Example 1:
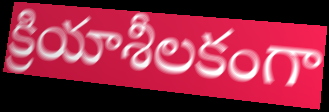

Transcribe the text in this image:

క్రియాశీలకంగా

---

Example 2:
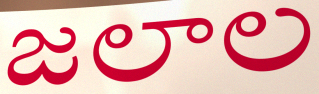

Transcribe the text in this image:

జలాల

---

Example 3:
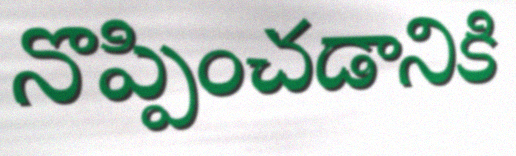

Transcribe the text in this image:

నొప్పించడానికి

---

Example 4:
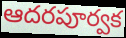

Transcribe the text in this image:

ఆదరపూర్వక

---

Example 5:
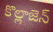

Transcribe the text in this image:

కొల్లాజెన్